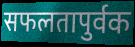
सफलतापुर्वक